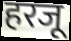
हरजू